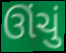
ઊંચું